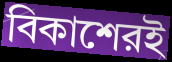
বিকাশেরই